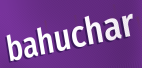
bahuchar